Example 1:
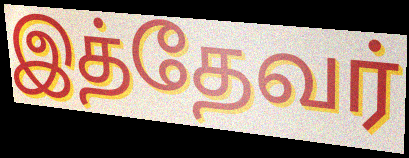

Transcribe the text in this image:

இத்தேவர்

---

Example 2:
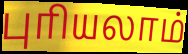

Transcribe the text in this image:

புரியலாம்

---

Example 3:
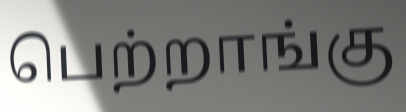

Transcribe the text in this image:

பெற்றாங்கு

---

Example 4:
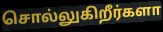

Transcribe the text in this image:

சொல்லுகிறீர்களா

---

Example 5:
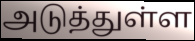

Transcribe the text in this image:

அடுத்துள்ள